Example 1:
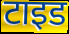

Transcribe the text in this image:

टाइड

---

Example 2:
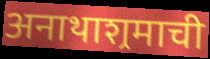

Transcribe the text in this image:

अनाथाश्रमाची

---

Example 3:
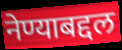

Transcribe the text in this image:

नेण्याबद्दल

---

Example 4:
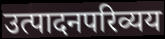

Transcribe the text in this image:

उत्पादनपरिव्यय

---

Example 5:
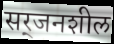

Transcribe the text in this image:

सर्जनशील